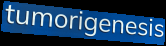
tumorigenesis